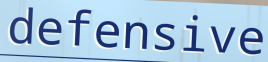
defensive